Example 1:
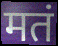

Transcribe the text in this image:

मतं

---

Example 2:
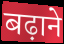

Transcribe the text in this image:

बढ़ाने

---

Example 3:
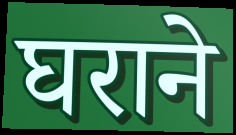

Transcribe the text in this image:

घराने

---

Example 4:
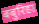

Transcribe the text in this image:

बबुरिहा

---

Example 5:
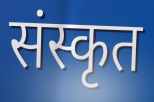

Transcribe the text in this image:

संस्कृत